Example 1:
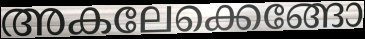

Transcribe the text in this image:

അകലേക്കെങ്ങോ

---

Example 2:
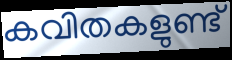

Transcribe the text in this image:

കവിതകളുണ്ട്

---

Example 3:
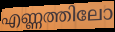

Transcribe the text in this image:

എണ്ണത്തിലോ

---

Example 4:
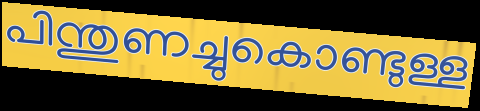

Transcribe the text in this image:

പിന്തുണച്ചുകൊണ്ടുള്ള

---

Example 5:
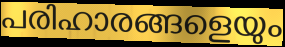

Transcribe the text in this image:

പരിഹാരങ്ങളെയും